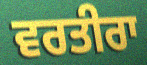
ਵਰਤੀਰਾ